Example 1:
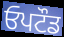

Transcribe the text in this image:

ਓਪਟੌਡ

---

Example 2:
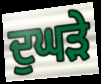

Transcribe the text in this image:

ਦੁਘੜੇ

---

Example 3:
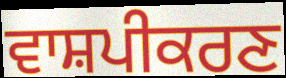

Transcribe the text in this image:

ਵਾਸ਼ਪੀਕਰਣ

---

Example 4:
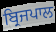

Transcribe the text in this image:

ਬ੍ਰਿਜਪਾਲ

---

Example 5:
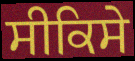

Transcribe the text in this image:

ਸੀਕਿਸੇ